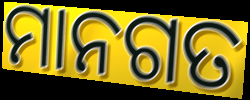
ମାନଗତ